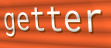
getter